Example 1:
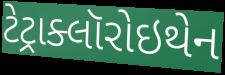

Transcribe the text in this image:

ટેટ્રાક્લૉરોઇથેન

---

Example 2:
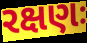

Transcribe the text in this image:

રક્ષણઃ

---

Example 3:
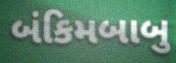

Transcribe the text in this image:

બંકિમબાબુ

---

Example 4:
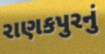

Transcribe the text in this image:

રાણકપુરનું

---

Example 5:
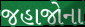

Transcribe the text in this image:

જહાજોના